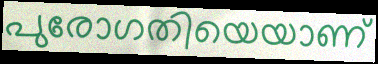
പുരോഗതിയെയാണ്